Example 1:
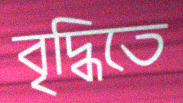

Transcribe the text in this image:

বৃদ্ধিতে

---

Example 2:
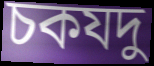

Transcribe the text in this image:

চকযদু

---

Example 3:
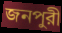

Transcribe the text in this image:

জনপুরী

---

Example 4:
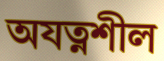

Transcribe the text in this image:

অযত্নশীল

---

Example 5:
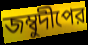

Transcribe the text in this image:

জম্বুদীপের